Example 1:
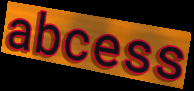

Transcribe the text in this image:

abcess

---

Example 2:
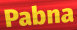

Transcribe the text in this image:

Pabna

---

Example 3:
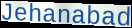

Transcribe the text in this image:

Jehanabad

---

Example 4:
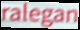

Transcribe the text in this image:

ralegan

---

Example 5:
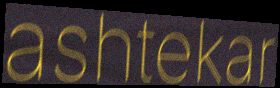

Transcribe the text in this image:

ashtekar